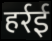
हर्रई